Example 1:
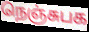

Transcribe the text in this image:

நெஞ்சுபக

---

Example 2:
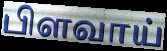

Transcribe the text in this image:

பிளவாய்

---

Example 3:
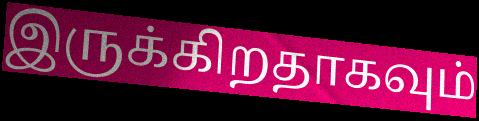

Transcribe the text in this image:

இருக்கிறதாகவும்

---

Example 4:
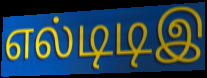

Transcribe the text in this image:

எல்டிடிஇ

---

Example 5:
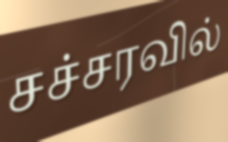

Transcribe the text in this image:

சச்சரவில்